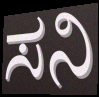
ಸನಿ